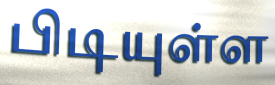
பிடியுள்ள